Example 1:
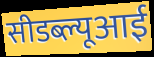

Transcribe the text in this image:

सीडब्ल्यूआई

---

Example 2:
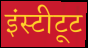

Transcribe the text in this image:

इंस्टीटूट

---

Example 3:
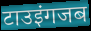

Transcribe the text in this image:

टाउइंगजब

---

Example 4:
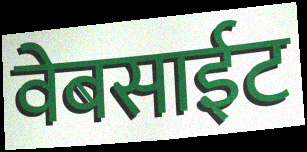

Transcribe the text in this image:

वेबसाईट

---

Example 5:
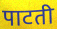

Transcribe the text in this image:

पाटती